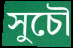
সুচৌ